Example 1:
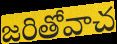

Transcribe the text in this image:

జరితోవాచ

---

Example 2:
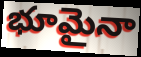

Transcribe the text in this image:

భూమైనా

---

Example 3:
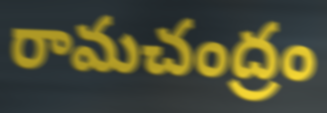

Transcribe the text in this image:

రామచంద్రం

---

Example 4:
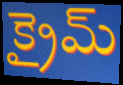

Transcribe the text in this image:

క్రైమ్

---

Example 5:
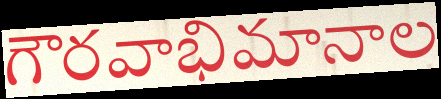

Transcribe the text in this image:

గౌరవాభిమానాల